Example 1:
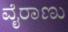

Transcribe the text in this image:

ವೈರಾಣು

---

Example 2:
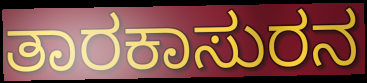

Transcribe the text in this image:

ತಾರಕಾಸುರನ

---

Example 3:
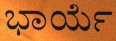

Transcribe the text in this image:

ಭಾರ್ಯೆ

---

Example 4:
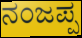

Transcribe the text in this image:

ನಂಜಪ್ಪ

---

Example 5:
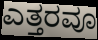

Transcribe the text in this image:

ಎತ್ತರವೂ